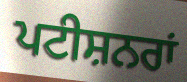
ਪਟੀਸ਼ਨਰਾਂ